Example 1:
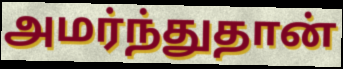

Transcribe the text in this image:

அமர்ந்துதான்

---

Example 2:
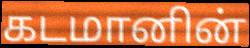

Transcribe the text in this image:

கடமானின்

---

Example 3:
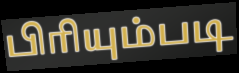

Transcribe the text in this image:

பிரியும்படி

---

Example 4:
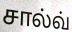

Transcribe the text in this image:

சால்வ்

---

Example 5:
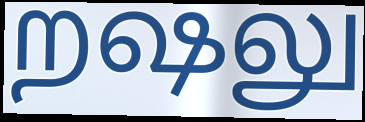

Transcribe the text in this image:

றஷலு